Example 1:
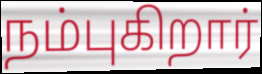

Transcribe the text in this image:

நம்புகிறார்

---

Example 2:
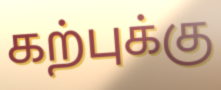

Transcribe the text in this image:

கற்புக்கு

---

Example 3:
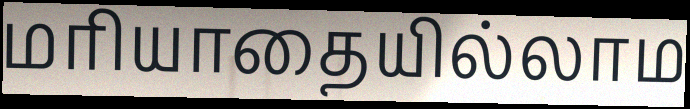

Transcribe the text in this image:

மரியாதையில்லாம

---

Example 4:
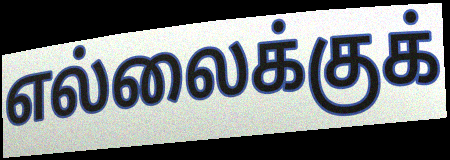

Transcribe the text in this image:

எல்லைக்குக்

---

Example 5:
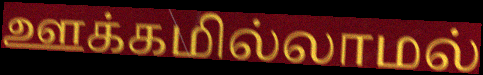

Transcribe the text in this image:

ஊக்கமில்லாமல்